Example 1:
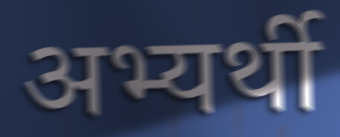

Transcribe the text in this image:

अभ्यर्थी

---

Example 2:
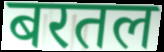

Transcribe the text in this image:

बरतल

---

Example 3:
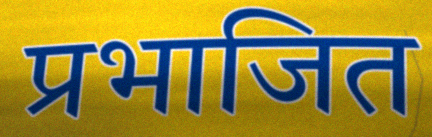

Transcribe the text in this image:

प्रभाजित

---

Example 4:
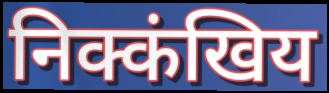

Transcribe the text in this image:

निक्कंखिय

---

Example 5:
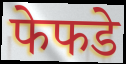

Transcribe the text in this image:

फेफडे